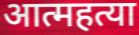
आत्महत्या